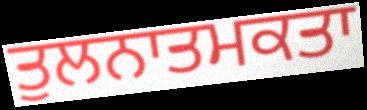
ਤੁਲਨਾਤਮਕਤਾ